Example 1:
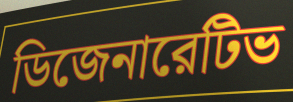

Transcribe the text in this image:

ডিজেনারেটিভ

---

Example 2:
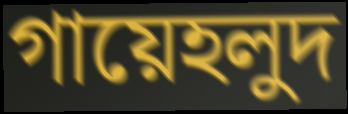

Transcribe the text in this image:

গায়েহলুদ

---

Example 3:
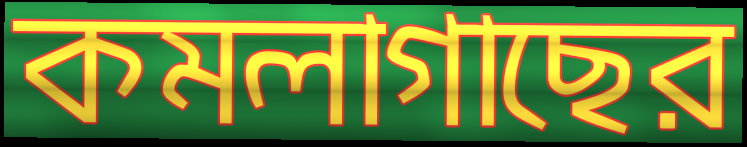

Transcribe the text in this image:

কমলাগাছের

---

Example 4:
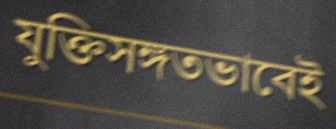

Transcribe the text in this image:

যুক্তিসঙ্গতভাবেই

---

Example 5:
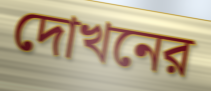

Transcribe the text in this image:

দোখনের